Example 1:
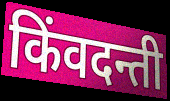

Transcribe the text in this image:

किंवदन्ती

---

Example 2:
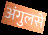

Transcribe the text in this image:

अंगुलसे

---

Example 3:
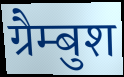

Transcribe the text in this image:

ग्रैम्बुश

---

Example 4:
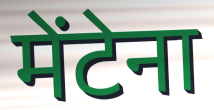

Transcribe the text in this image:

मेंटेना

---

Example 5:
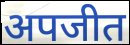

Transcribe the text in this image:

अपजीत